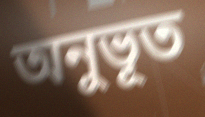
অনুভূত